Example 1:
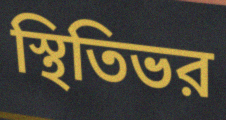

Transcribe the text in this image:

স্থিতিভর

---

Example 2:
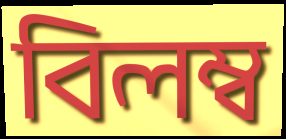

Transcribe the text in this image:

বিলম্ব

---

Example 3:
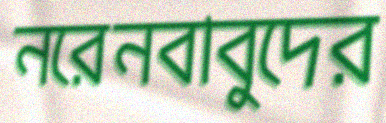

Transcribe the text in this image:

নরেনবাবুদের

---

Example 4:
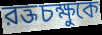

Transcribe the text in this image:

রক্তচক্ষুকে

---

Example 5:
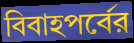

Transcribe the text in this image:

বিবাহপর্বের